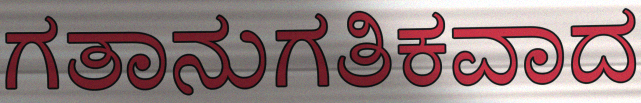
ಗತಾನುಗತಿಕವಾದ